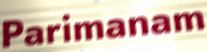
Parimanam